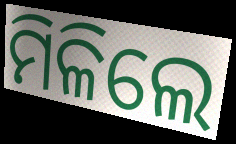
ମିଳିଲେ